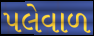
પલેવાળ